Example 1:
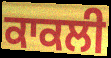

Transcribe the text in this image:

ਕਾਕਲੀ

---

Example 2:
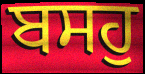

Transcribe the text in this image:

ਬਸਹੁ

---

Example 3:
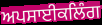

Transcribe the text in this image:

ਅਪਸਾਈਕਲਿੰਗ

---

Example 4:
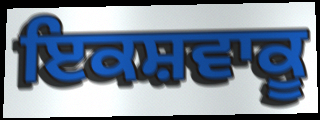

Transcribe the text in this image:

ਇਕਸ਼ਵਾਕੂ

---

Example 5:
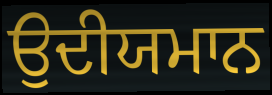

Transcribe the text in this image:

ਉਦੀਯਮਾਨ